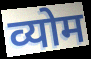
व्योम